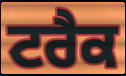
ਟਰੈਕ